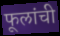
फूलांची